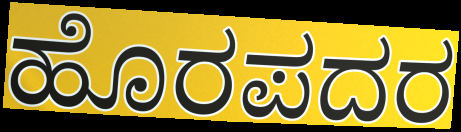
ಹೊರಪದರ